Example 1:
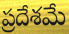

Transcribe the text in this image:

ప్రదేశమే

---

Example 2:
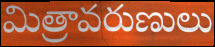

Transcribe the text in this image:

మిత్రావరుణులు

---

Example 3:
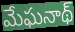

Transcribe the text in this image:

మేఘనాథ్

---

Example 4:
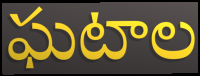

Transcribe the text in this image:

ఘటాల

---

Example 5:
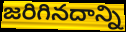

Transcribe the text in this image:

జరిగినదాన్ని